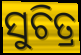
ସୁଚିତ୍ର